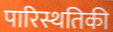
पारिस्थतिकी